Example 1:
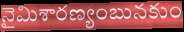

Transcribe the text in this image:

నైమిశారణ్యంబునకుం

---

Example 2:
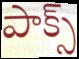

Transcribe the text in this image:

పాక్స్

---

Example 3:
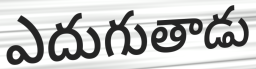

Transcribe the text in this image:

ఎదుగుతాడు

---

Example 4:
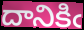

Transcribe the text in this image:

దానికిఁ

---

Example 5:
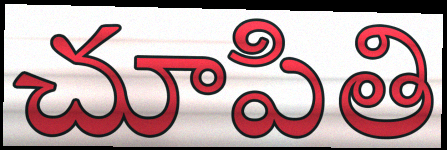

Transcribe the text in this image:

చూపితి